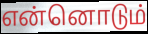
என்னொடும்